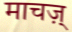
माचज़्